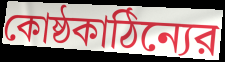
কোষ্ঠকাঠিন্যের